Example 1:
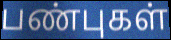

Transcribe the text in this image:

பண்புகள்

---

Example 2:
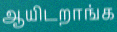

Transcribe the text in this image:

ஆயிடறாங்க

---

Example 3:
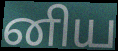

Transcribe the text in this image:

னிய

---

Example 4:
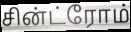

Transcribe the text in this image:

சின்ட்ரோம்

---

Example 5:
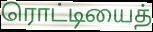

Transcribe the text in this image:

ரொட்டியைத்